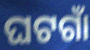
ଘଟଗାଁ